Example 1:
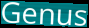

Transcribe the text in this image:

Genus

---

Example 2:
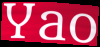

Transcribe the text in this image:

Yao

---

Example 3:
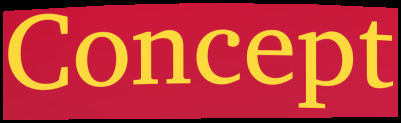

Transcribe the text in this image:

Concept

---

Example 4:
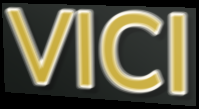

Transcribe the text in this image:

VICI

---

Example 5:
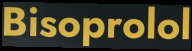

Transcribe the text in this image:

Bisoprolol